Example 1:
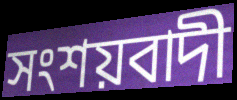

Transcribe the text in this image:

সংশয়বাদী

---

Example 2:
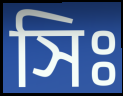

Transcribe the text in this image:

সিঃ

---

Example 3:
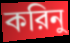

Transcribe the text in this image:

করিনু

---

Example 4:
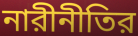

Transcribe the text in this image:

নারীনীতির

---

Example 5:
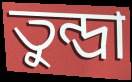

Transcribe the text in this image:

তুন্দ্রা